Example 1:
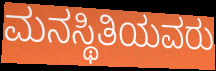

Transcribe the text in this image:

ಮನಸ್ಥಿತಿಯವರು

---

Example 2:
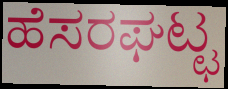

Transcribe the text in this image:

ಹೆಸರಘಟ್ಟ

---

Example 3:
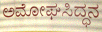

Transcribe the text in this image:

ಅಮೋಘಸಿದ್ಧನ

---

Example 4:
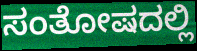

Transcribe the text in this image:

ಸಂತೋಷದಲ್ಲಿ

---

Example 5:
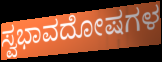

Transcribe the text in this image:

ಸ್ವಭಾವದೋಷಗಳ